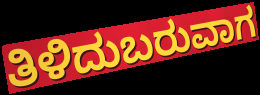
ತಿಳಿದುಬರುವಾಗ